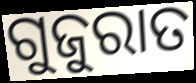
ଗୁଜୁରାତ